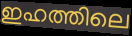
ഇഹത്തിലെ